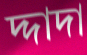
দ্দাদা